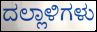
ದಲ್ಲಾಳಿಗಳು